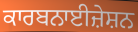
ਕਾਰਬਨਾਈਜ਼ੇਸ਼ਨ